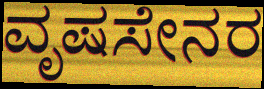
ವೃಷಸೇನರ